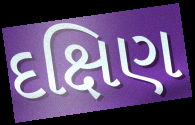
દક્ષિણ